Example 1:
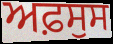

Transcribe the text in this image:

ਅਫ਼ਸੁਸ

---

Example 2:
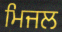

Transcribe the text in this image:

ਮਿਜਲ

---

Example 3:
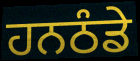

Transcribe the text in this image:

ਹਨਠੰਡੇ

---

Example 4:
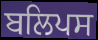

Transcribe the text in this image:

ਬਲਿਪਸ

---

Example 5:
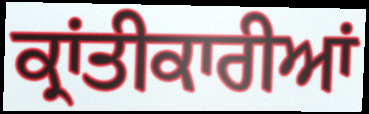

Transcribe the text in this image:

ਕ੍ਰਾਂਤੀਕਾਰੀਆਂ